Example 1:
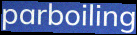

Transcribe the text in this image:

parboiling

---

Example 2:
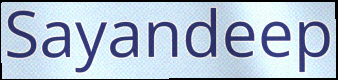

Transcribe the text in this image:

Sayandeep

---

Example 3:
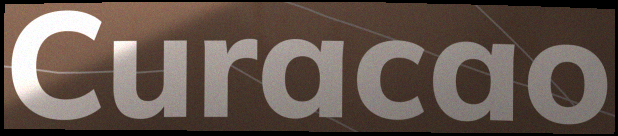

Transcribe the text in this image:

Curacao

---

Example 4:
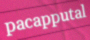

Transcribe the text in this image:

pacapputal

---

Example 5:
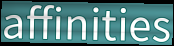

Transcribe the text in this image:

affinities